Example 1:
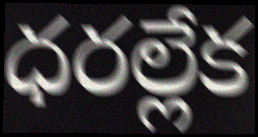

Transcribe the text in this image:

ధరల్లేక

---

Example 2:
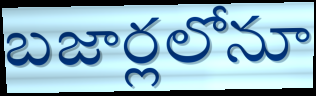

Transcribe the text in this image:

బజార్లలోనూ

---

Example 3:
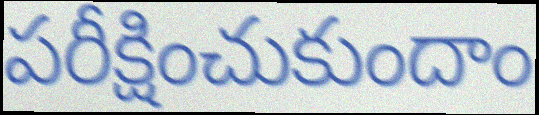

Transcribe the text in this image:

పరీక్షించుకుందాం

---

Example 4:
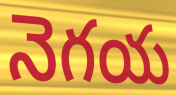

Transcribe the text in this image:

నెగయ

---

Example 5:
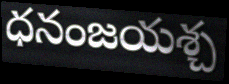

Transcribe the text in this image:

ధనంజయశ్చ